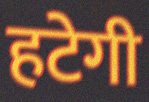
हटेगी